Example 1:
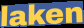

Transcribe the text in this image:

laken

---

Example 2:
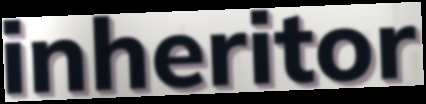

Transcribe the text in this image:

inheritor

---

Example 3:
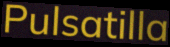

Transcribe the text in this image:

Pulsatilla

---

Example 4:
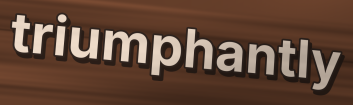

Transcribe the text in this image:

triumphantly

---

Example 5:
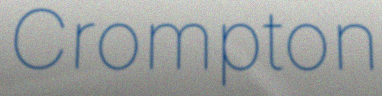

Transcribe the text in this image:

Crompton